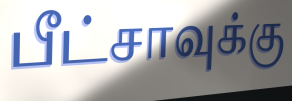
பீட்சாவுக்கு